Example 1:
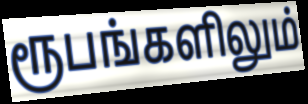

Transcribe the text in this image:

ரூபங்களிலும்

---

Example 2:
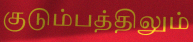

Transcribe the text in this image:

குடும்பத்திலும்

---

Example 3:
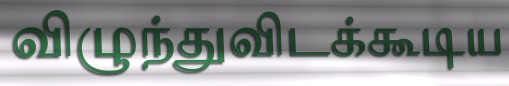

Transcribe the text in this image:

விழுந்துவிடக்கூடிய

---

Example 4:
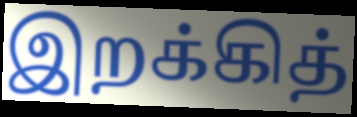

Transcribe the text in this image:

இறக்கித்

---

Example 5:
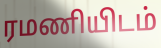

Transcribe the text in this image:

ரமணியிடம்